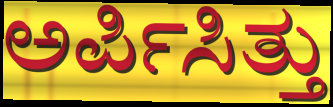
ಅರ್ಪಿಸಿತ್ತು